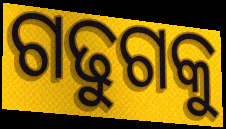
ଗଢୁଗକୁ